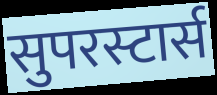
सुपरस्‍टार्स